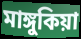
মাঙ্গুকিয়া